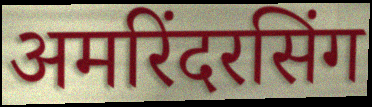
अमरिंदरसिंग